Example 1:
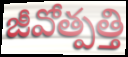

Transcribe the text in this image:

జీవోత్పత్తి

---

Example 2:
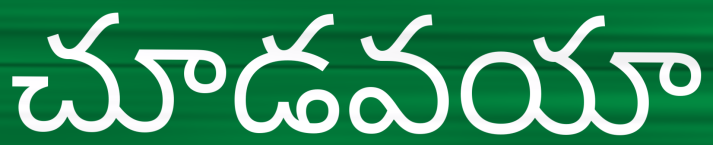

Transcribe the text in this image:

చూడవయా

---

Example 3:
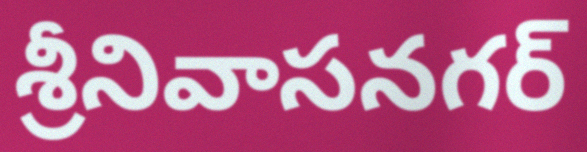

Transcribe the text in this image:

శ్రీనివాసనగర్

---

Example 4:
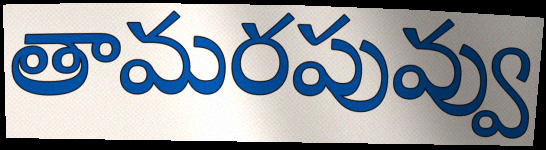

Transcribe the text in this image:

తామరపువ్వు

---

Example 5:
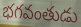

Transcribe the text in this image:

భగవంతుడు